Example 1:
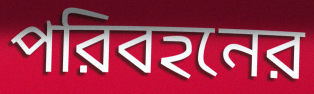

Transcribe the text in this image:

পরিবহনের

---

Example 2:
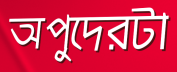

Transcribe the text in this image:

অপুদেরটা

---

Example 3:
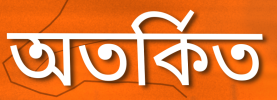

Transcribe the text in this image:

অতর্কিত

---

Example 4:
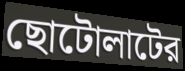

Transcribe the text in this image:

ছোটোলাটের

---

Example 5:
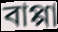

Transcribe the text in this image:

বাপ্পা